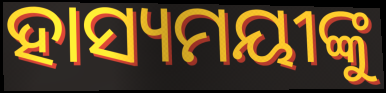
ହାସ୍ୟମୟୀଙ୍କୁ